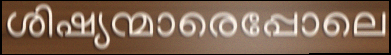
ശിഷ്യന്മാരെപ്പോലെ